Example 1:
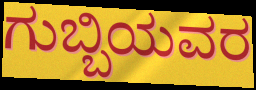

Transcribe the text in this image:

ಗುಬ್ಬಿಯವರ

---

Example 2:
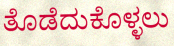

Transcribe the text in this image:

ತೊಡೆದುಕೊಳ್ಳಲು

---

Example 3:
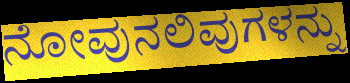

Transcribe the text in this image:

ನೋವುನಲಿವುಗಳನ್ನು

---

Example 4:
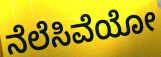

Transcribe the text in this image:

ನೆಲೆಸಿವೆಯೋ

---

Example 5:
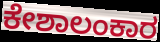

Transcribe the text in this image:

ಕೇಶಾಲಂಕಾರ